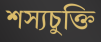
শস্যচুক্তি